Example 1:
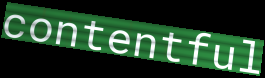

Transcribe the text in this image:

contentful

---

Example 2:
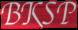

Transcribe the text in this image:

BKSP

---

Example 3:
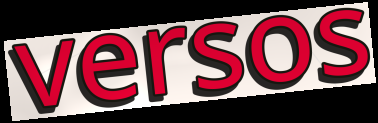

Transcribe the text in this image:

versos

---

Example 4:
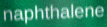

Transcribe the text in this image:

naphthalene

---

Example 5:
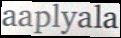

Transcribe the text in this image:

aaplyala